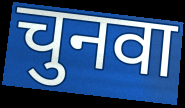
चुनवा